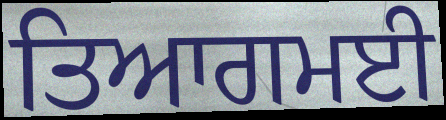
ਤਿਆਗਮਈ